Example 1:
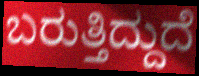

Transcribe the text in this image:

ಬರುತ್ತಿದ್ದುದೆ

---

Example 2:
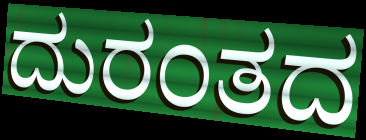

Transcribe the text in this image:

ದುರಂತದ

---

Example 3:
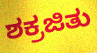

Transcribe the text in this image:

ಶಕ್ರಜಿತು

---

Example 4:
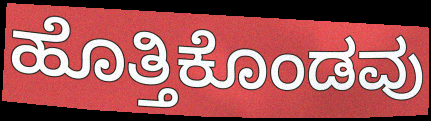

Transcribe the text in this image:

ಹೊತ್ತಿಕೊಂಡವು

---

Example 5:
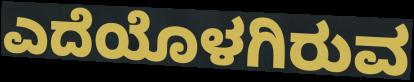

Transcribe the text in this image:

ಎದೆಯೊಳಗಿರುವ